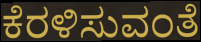
ಕೆರಳಿಸುವಂತೆ